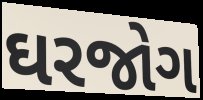
ઘરજોગ